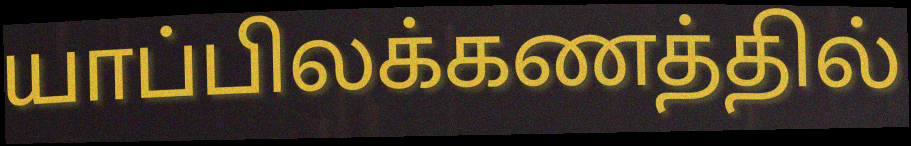
யாப்பிலக்கணத்தில்